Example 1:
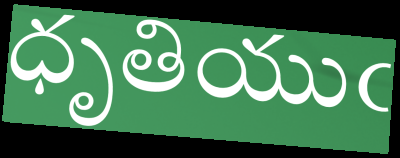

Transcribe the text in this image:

ధృతియుఁ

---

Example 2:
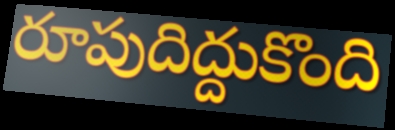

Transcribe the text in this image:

రూపుదిద్దుకొంది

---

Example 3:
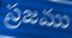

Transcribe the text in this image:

స్రజము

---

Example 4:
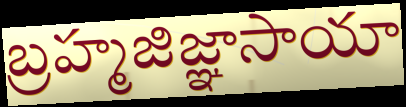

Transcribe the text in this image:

బ్రహ్మజిజ్ఞాసాయా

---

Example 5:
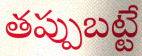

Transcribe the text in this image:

తప్పుబట్టే